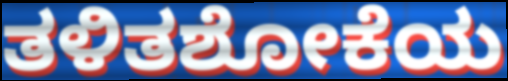
ತಳಿತಶೋಕೆಯ